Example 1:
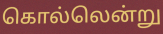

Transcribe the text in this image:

கொல்லென்று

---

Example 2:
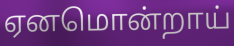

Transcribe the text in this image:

ஏனமொன்றாய்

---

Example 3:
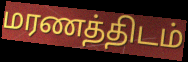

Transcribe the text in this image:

மரணத்திடம்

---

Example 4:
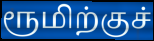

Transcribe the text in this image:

ரூமிற்குச்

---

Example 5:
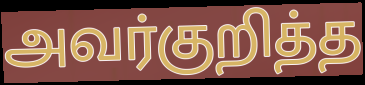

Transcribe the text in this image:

அவர்குறித்த